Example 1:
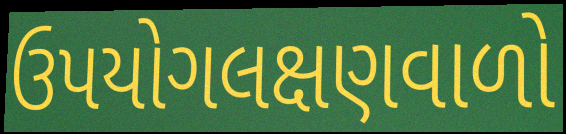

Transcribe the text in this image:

ઉપયોગલક્ષણવાળો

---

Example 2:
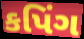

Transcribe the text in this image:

કપિંગ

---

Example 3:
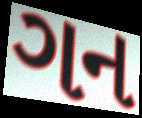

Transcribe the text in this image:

ગન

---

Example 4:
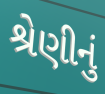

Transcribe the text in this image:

શ્રેણીનું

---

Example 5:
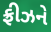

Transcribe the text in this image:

ફ્રીઝને